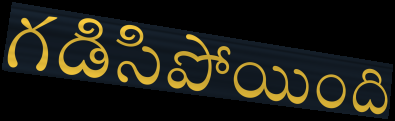
గడిసిపోయింది